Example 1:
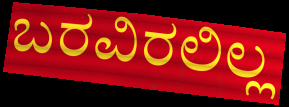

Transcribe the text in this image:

ಬರವಿರಲಿಲ್ಲ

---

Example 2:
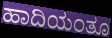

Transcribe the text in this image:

ಹಾದಿಯಂತೂ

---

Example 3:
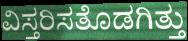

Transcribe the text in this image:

ವಿಸ್ತರಿಸತೊಡಗಿತ್ತು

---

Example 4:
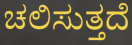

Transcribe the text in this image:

ಚಲಿಸುತ್ತದೆ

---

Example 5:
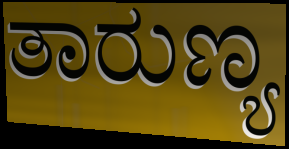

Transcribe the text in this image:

ತಾರುಣ್ಯ